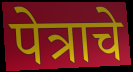
पेत्राचे